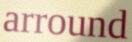
arround